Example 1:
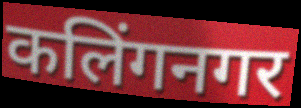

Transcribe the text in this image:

कलिंगनगर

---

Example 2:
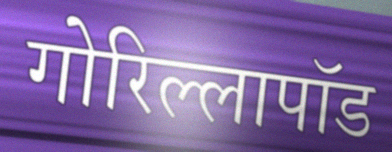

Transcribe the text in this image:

गोरिल्लापॉड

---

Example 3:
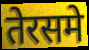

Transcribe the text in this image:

तेरसमे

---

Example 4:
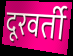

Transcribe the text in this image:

दूरवर्ती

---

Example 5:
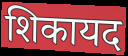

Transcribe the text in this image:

शिकायद